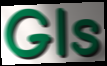
Gls